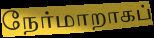
நேர்மாறாகப்